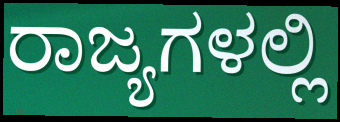
ರಾಜ್ಯಗಳಲ್ಲಿ